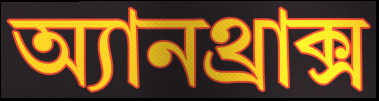
অ্যানথ্রাক্স